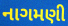
નાગમણી